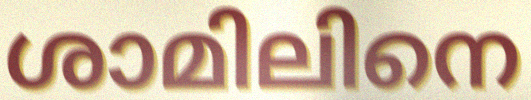
ശാമിലിനെ